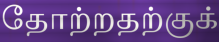
தோற்றதற்குக்